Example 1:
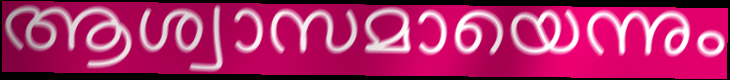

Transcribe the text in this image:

ആശ്വാസമായെന്നും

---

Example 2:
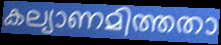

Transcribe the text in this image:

കല്യാണമിത്തതാ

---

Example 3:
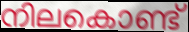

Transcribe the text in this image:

നിലകൊണ്ട്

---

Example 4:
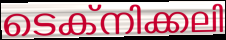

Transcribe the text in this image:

ടെക്‌നിക്കലി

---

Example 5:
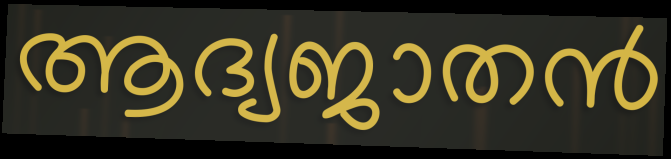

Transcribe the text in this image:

ആദ്യജാതൻ